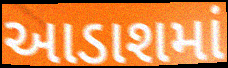
આડાશમાં